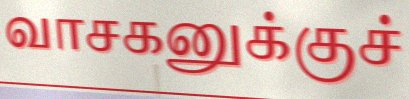
வாசகனுக்குச்